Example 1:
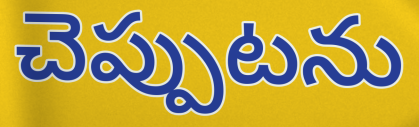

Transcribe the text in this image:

చెప్పుటను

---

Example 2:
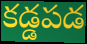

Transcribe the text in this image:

కడ్డపడ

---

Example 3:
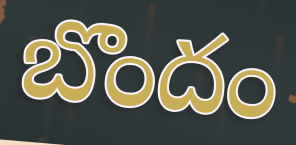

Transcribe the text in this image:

బొందం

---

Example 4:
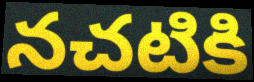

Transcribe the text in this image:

నచటికి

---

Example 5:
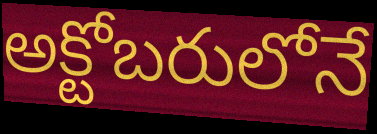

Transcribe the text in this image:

అక్టోబరులోనే